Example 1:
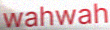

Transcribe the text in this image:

wahwah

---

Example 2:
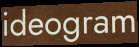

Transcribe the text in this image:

ideogram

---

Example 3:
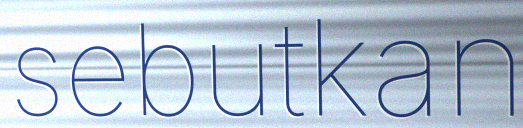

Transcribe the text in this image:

sebutkan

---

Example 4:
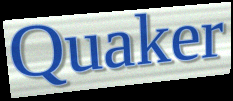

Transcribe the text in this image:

Quaker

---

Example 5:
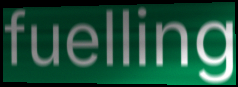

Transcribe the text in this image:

fuelling